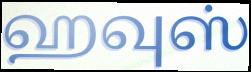
ஹவுஸ்